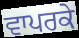
ਵਾਪਰਕੇ